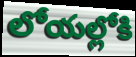
లోయల్లోకి